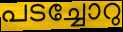
പടച്ചോറു